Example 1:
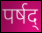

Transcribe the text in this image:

पर्षद्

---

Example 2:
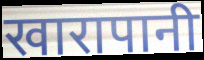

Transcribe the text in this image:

खारापानी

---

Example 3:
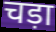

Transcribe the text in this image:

चड़ा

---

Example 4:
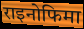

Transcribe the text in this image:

राइनोफिमा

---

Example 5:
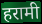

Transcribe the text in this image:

हरामी